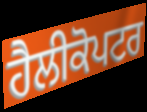
ਹੈਲੀਕੋਪਟਰ